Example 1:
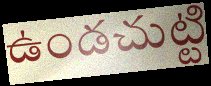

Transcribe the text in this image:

ఉండచుట్టి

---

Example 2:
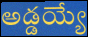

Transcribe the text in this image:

అడ్డయ్యే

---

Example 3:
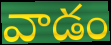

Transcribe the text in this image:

వాడం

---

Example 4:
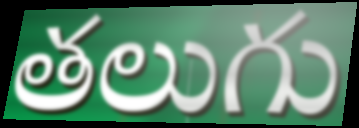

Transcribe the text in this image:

తలుగు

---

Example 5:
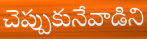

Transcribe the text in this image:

చెప్పుకునేవాడిని